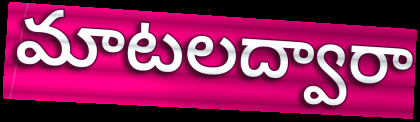
మాటలద్వారా